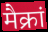
मैक्रां